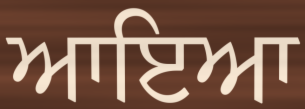
ਆਇਆ